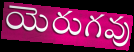
యెరుగవు